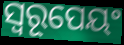
ସ୍ୱରୂପେୟଂ